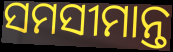
ସମସୀମାନ୍ତ